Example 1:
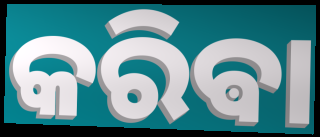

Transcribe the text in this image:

କରିଵା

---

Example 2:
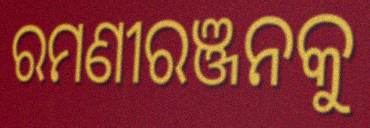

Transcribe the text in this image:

ରମଣୀରଞ୍ଜନକୁ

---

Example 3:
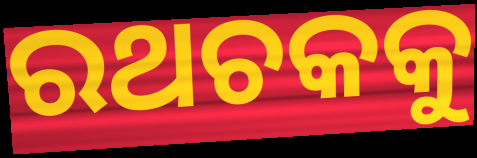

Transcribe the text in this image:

ରଥଚକକୁ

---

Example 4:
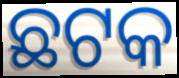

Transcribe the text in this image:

ଛଟକ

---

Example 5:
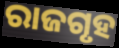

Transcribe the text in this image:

ରାଜଗୃହ